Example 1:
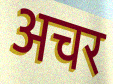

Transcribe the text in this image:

अचर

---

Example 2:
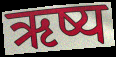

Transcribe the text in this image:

ऋष्य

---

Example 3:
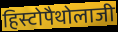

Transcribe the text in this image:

हिस्टोपैथोलाजी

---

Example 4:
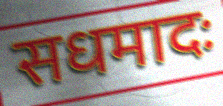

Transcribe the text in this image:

सधमादः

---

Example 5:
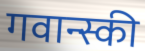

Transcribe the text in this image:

गवान्स्की